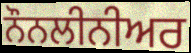
ਨੌਨਲੀਨੀਅਰ